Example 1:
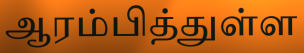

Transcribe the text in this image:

ஆரம்பித்துள்ள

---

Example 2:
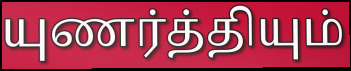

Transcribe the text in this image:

யுணர்த்தியும்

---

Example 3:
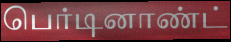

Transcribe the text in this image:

பெர்டினாண்ட்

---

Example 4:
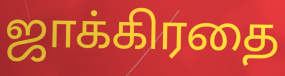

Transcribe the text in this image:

ஜாக்கிரதை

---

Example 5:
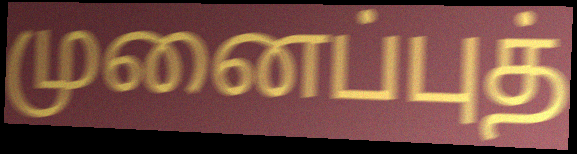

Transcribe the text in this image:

முனைப்புத்